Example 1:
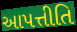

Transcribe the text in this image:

આપત્તીતિ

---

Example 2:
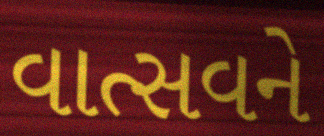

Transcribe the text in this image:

વાત્સવને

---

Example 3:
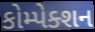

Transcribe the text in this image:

કોમ્પેક્શન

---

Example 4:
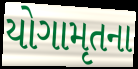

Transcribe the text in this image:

યોગામૃતના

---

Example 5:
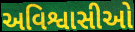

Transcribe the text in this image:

અવિશ્વાસીઓ